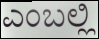
ಎಂಬಲ್ಲಿ